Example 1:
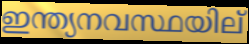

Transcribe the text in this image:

ഇന്ത്യനവസ്ഥയില്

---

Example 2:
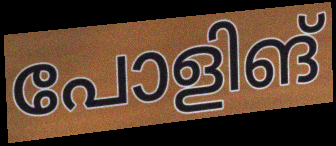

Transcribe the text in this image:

പോളിങ്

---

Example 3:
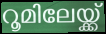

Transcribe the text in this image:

റൂമിലേയ്ക്ക്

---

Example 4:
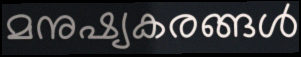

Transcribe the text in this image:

മനുഷ്യകരങ്ങൾ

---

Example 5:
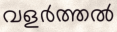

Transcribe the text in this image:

വളർത്തൽ